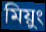
মিয়ুং